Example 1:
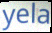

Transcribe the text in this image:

yela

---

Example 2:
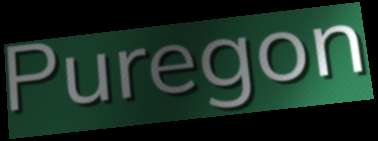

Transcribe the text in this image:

Puregon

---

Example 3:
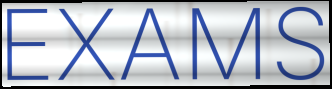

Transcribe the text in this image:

EXAMS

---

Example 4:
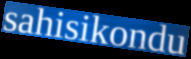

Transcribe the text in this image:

sahisikondu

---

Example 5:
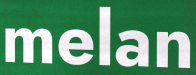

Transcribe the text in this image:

melan